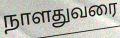
நாளதுவரை